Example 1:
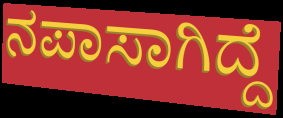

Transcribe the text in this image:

ನಪಾಸಾಗಿದ್ದೆ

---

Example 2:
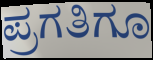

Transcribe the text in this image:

ಪ್ರಗತಿಗೂ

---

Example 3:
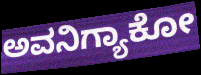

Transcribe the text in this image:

ಅವನಿಗ್ಯಾಕೋ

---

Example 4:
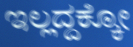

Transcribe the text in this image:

ಇಲ್ಲದ್ದಕ್ಕೋ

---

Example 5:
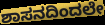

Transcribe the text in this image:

ಶಾಸನದಿಂದಲೇ